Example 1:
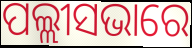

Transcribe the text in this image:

ପଲ୍ଲୀସଭାରେ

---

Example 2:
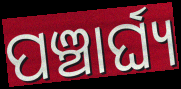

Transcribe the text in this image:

ପଞ୍ଚାର୍ଘ୍ୟ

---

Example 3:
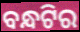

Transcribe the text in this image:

ବନ୍ଧଟିର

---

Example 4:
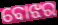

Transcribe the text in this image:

ବୋଝର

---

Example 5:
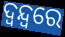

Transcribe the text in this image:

ଦ୍ୱନ୍ଦ୍ବରେ